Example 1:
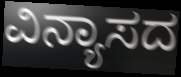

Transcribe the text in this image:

ವಿನ್ಯಾಸದ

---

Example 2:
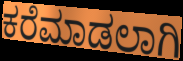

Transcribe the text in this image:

ಕರೆಮಾಡಲಾಗಿ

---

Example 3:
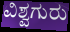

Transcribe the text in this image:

ವಿಶ್ವಗುರು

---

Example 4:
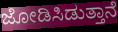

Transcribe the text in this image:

ಜೋಡಿಸಿಡುತ್ತಾನೆ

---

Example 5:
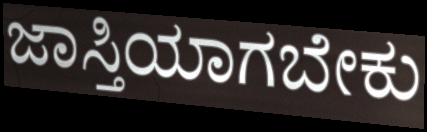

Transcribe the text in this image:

ಜಾಸ್ತಿಯಾಗಬೇಕು